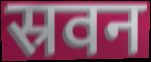
स्रवन